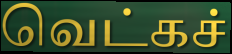
வெட்கச்